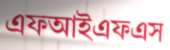
এফআইএফএস